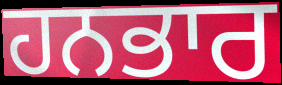
ਹਨਭਾਰ